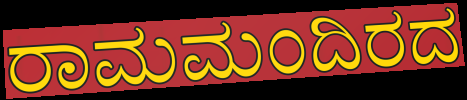
ರಾಮಮಂದಿರದ